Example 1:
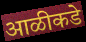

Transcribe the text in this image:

आळीकडे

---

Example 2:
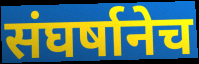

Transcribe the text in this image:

संघर्षानेच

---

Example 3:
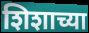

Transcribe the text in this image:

शिशाच्या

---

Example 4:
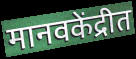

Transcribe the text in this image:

मानवकेंद्रीत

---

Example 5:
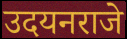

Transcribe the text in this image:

उदयनराजे